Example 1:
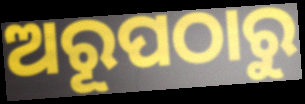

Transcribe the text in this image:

ଅରୂପଠାରୁ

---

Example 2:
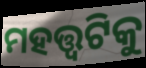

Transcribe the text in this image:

ମହତ୍ତ୍ୱଟିକୁ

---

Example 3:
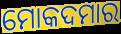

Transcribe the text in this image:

ମୋକଦମାର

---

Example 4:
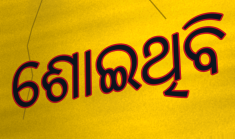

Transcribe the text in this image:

ଶୋଇଥିବି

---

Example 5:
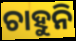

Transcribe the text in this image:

ଚାହୁନି